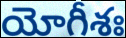
యోగీశః